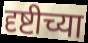
दृष्टीच्या